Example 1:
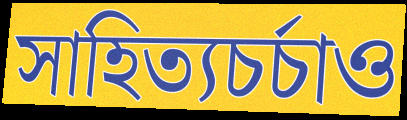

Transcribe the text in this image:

সাহিত্যচর্চাও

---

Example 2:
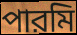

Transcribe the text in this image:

পারমি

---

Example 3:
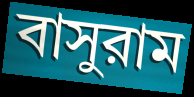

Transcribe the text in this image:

বাসুরাম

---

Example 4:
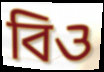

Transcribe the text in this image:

বিও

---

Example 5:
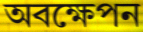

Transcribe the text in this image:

অবক্ষেপন